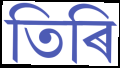
তিৰি